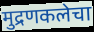
मुद्रणकलेचा